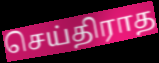
செய்திராத